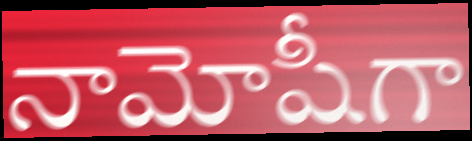
నామోషీగా